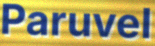
Paruvel